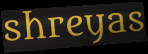
shreyas